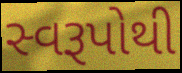
સ્વરૂપોથી